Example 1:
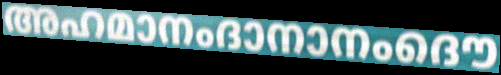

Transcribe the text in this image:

അഹമാനംദാനാനംദൌ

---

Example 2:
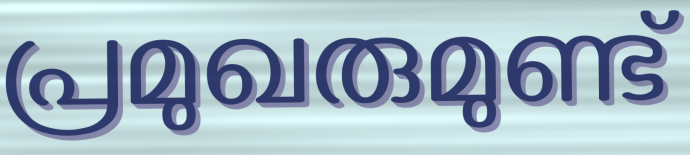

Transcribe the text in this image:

പ്രമുഖരുമുണ്ട്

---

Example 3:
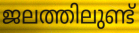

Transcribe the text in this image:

ജലത്തിലുണ്ട്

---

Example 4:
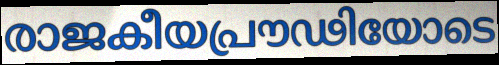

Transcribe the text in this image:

രാജകീയപ്രൗഢിയോടെ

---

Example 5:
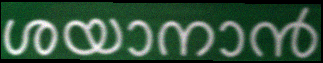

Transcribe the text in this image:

ശയാനാൻ